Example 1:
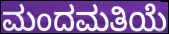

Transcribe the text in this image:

ಮಂದಮತಿಯೆ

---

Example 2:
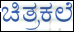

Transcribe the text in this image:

ಚಿತ್ರಕಲೆ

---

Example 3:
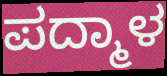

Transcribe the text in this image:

ಪದ್ಮಾಳ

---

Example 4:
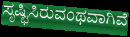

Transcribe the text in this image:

ಸೃಷ್ಟಿಸಿರುವಂಥವಾಗಿವೆ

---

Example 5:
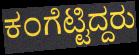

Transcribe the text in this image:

ಕಂಗೆಟ್ಟಿದ್ದರು